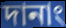
দানাং